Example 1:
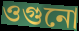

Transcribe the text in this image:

ওগুনো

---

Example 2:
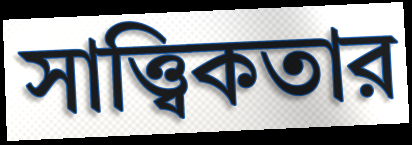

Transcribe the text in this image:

সাত্ত্বিকতার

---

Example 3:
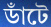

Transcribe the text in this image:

ডাঁটে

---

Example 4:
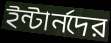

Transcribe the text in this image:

ইন্টার্নদের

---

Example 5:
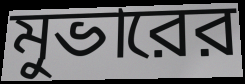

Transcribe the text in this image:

মুভারের